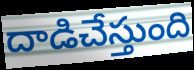
దాడిచేస్తుంది